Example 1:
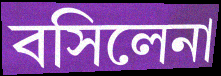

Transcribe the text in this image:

বসিলেনা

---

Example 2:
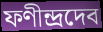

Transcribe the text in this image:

ফণীন্দ্রদেব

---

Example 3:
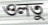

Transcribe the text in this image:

ওলতু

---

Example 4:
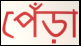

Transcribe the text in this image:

পেঁড়া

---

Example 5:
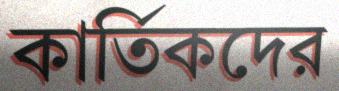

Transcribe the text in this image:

কার্তিকদের